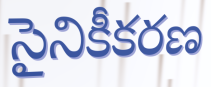
సైనికీకరణ